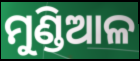
ମୁଣ୍ଡିଆଳ